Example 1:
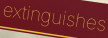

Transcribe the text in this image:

extinguishes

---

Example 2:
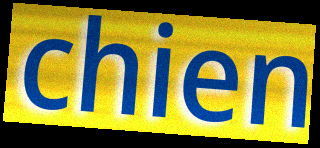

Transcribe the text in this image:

chien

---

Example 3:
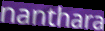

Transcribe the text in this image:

nanthara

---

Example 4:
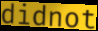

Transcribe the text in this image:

didnot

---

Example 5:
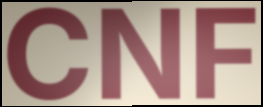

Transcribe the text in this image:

CNF